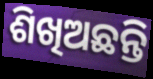
ଶିଖିଅଛନ୍ତି